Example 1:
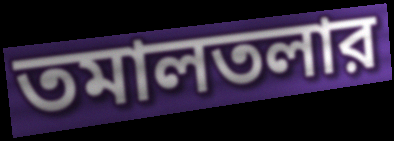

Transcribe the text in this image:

তমালতলার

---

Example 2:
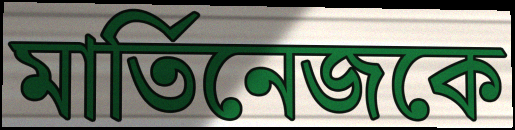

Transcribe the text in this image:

মার্তিনেজকে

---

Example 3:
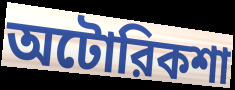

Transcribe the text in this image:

অটোরিকশা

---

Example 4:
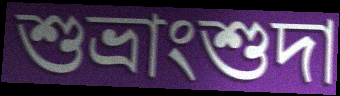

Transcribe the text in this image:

শুভ্রাংশুদা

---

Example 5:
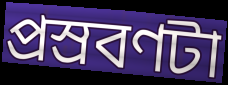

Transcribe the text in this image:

প্রস্রবণটা